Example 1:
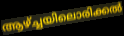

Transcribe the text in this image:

ആഴ്ച്ചയിലൊരിക്കൽ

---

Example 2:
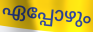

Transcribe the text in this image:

ഏപ്പോഴും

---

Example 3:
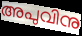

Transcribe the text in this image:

അപുവിനു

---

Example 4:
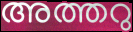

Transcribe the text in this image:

അത്തറു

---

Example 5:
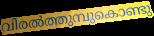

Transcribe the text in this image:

വിരൽത്തുമ്പുകൊണ്ടു